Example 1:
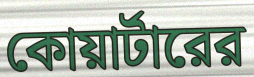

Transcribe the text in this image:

কোয়ার্টারের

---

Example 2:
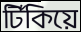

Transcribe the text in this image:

টিঁকিয়ে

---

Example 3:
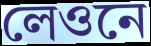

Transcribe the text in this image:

লেওনে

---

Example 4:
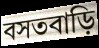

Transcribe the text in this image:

বসতবাড়ি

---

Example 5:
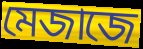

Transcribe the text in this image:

মেজাজে